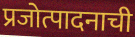
प्रजोत्पादनाची